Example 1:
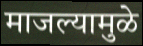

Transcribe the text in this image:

माजल्यामुळे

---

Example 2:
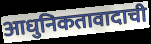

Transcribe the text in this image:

आधुनिकतावादाची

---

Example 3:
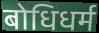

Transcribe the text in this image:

बोधिधर्म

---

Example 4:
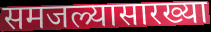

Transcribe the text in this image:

समजल्यासारख्या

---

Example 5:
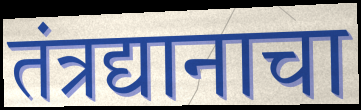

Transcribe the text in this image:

तंत्रद्यानाचा